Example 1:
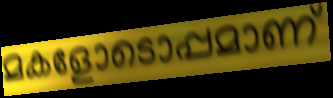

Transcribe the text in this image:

മകളോടൊപ്പമാണ്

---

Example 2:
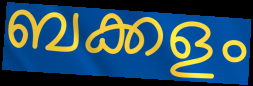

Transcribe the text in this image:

ബക്കളം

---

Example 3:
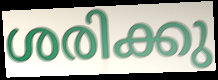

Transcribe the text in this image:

ശരിക്കു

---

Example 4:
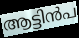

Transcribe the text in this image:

ആട്ടിൻപ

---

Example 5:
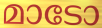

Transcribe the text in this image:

മാടോ